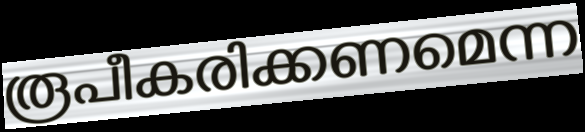
രൂപീകരിക്കണമെന്ന